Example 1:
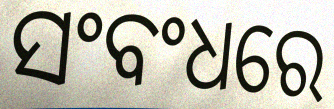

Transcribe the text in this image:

ସଂବଂଧରେ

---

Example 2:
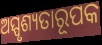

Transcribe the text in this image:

ଅସ୍ପୃଶ୍ୟତାରୂପକ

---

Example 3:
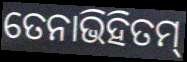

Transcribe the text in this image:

ତେନାଭିହିତମ୍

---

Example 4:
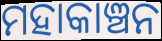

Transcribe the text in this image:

ମହାକାଞ୍ଚନ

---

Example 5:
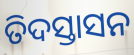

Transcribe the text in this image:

ତିଦସ୍ତାସନ